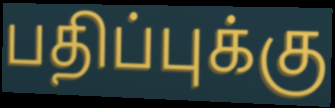
பதிப்புக்கு